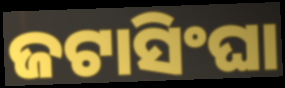
ଜଟାସିଂଘା